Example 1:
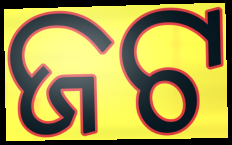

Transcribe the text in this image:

ଜଟ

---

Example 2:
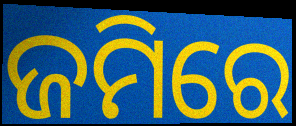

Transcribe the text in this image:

ଜମିରେ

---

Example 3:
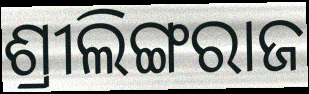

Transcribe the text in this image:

ଶ୍ରୀଲିଙ୍ଗରାଜ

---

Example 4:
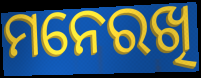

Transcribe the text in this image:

ମନେରଖି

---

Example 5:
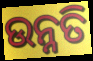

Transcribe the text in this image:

ଉନ୍ନତି